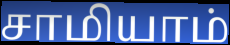
சாமியாம்